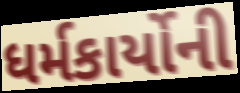
ધર્મકાર્યોની